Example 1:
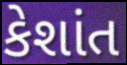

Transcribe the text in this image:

કેશાંત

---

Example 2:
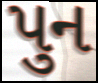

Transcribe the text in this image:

પુન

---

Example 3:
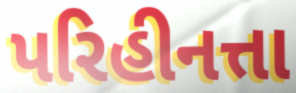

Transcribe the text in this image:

પરિહીનત્તા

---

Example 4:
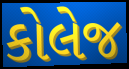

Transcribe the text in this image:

કોલેજ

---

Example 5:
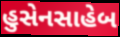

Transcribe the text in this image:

હુસેનસાહેબ